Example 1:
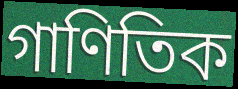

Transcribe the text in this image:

গাণিতিক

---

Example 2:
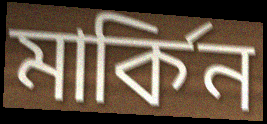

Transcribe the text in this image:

মাৰ্কিন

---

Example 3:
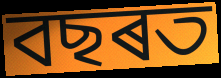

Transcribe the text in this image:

বছৰত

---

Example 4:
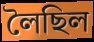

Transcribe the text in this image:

লৈছিল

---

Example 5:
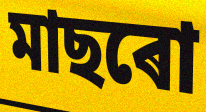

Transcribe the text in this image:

মাছৰো